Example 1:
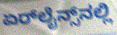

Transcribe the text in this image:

ಏರ್‌ಲೈನ್ಸ್‌ನಲ್ಲಿ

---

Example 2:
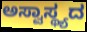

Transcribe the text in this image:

ಅಸ್ವಾಸ್ಥ್ಯದ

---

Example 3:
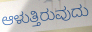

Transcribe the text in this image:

ಆಳುತ್ತಿರುವುದು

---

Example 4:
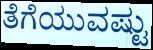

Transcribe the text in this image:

ತೆಗೆಯುವಷ್ಟು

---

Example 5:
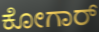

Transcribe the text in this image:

ಕೋಗಾರ್